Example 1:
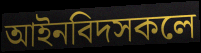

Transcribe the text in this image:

আইনবিদসকলে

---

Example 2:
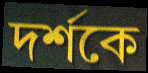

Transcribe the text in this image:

দৰ্শকে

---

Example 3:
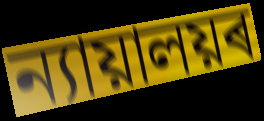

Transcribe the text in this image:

ন্যায়ালয়ৰ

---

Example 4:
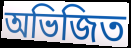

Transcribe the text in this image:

অভিজিত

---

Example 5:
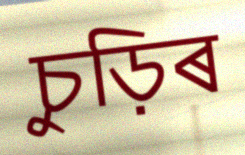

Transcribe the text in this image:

চুড়িৰ